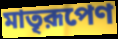
মাতৃরূপেণ